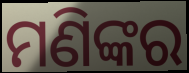
ମଣିଙ୍କର